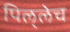
पिल्लेच